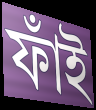
ফাঁই